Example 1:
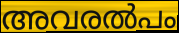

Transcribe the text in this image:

അവരൽപം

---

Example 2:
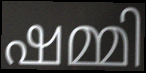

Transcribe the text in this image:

ഷമ്മി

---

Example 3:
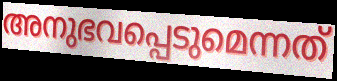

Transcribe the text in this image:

അനുഭവപ്പെടുമെന്നത്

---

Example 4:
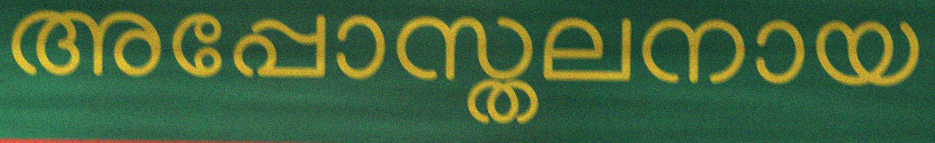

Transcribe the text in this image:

അപ്പോസ്തലനായ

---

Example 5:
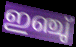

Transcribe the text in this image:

ഇഞ്ചു്